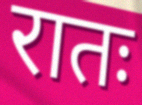
रातः